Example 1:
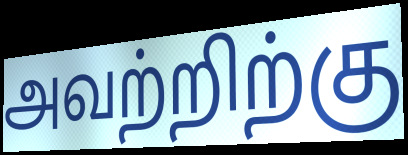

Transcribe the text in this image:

அவற்றிற்கு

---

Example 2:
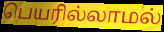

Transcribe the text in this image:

பெயரில்லாமல்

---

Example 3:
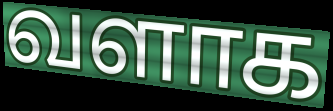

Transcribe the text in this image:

வளாக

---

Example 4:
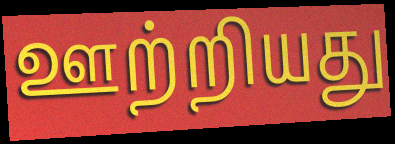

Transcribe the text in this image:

ஊற்றியது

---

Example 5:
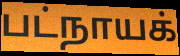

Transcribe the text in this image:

பட்நாயக்